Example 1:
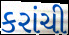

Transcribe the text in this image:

કરાંચી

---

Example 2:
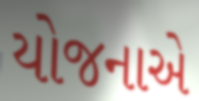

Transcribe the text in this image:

યોજનાએ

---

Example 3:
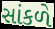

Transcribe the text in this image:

સાંકળે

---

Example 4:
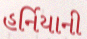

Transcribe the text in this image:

હર્નિયાની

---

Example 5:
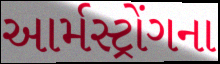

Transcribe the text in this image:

આર્મસ્ટ્રોંગના